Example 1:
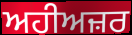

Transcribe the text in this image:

ਅਹੀਅਜ਼ਰ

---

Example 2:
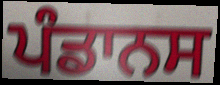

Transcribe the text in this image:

ਪੰਡਾਨਸ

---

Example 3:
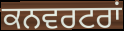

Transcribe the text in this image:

ਕਨਵਰਟਰਾਂ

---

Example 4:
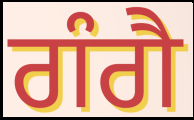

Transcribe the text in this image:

ਗੰਗੈ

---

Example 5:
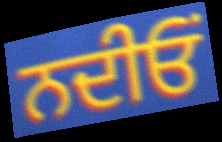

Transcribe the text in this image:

ਨਦੀਓਂ